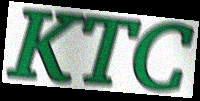
KTC